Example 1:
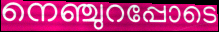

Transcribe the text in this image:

നെഞ്ചുറപ്പോടെ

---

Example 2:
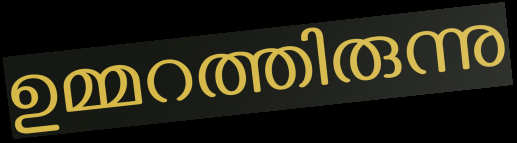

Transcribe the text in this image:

ഉമ്മറത്തിരുന്നു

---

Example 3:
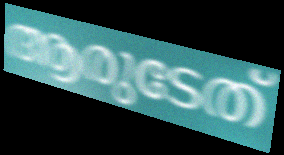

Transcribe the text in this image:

ആരുടേത്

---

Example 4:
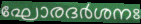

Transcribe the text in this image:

ഘോരദർശനഃ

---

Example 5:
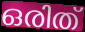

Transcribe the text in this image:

ഒരിത്